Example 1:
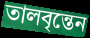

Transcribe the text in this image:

তালবৃন্তেন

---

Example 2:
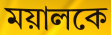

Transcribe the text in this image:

ময়ালকে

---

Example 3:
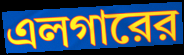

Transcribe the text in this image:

এলগারের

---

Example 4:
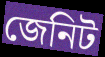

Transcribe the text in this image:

জেনিট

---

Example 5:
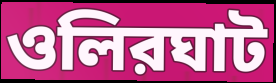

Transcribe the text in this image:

ওলিরঘাট